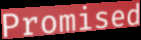
Promised